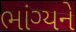
ભાંગ્યને